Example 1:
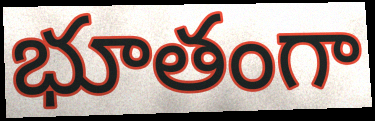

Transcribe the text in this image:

భూతంగా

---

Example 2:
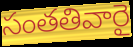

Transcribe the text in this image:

సంతతివారై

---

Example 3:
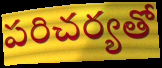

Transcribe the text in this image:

పరిచర్యతో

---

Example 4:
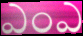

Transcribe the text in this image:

ఎంఎ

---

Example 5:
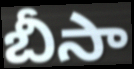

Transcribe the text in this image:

బీసా